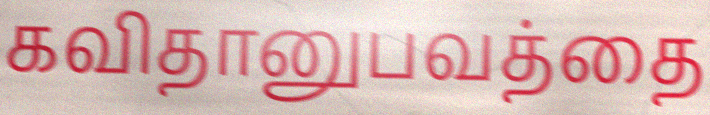
கவிதானுபவத்தை